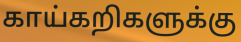
காய்கறிகளுக்கு